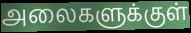
அலைகளுக்குள்